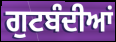
ਗੁਟਬੰਦੀਆਂ